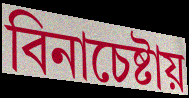
বিনাচেষ্টায়